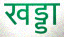
खड्डा